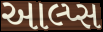
આલ્પ્સ